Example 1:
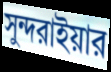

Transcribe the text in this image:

সুন্দরাইয়ার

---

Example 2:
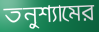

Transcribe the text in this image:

তনুশ্যামের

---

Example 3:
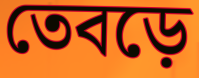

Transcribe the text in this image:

তেবড়ে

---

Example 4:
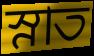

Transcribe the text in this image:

স্নাত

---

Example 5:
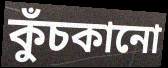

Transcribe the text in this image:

কুঁচকানো